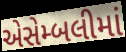
એસેમ્બલીમાં